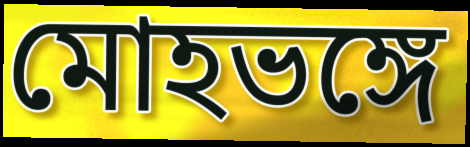
মোহভঙ্গে